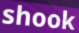
shook